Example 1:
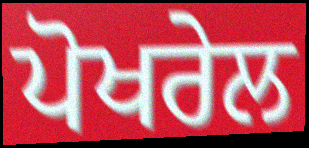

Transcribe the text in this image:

ਪੋਖਰੇਲ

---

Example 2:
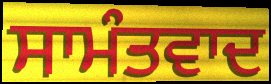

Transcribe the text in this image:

ਸਾਮੰਤਵਾਦ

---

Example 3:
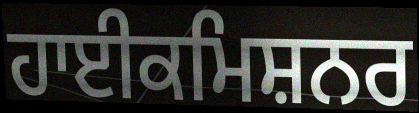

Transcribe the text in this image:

ਹਾਈਕਮਿਸ਼ਨਰ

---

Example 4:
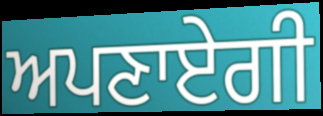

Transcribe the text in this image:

ਅਪਣਾਏਗੀ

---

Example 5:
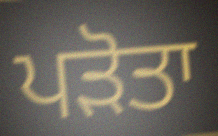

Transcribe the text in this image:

ਪੜੋਤਾ